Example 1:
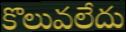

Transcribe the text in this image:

కొలువలేదు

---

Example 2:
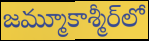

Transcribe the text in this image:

జమ్మూకాశ్మీర్‌లో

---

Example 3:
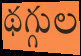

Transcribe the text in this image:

థగ్గుల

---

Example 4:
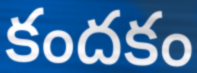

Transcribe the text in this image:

కందకం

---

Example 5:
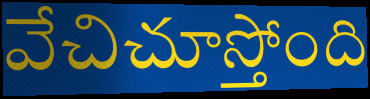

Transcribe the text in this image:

వేచిచూస్తోంది